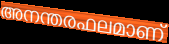
അനന്തരഫലമാണ്